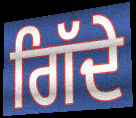
ਗਿੱਦੇ